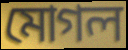
মোগল